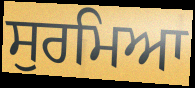
ਸੁਰਮਿਆ